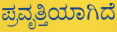
ಪ್ರವೃತ್ತಿಯಾಗಿದೆ